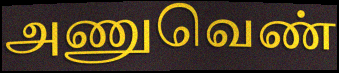
அணுவெண்